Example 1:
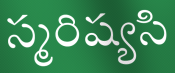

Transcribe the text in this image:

స్మరిష్యసి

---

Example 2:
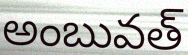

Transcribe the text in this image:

అంబువత్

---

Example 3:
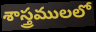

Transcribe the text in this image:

శాస్త్రములలో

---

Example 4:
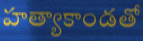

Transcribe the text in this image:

హత్యాకాండతో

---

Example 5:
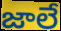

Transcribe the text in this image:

జాలే